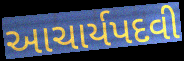
આચાર્યપદવી